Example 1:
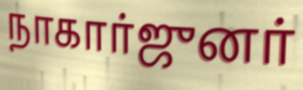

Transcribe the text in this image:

நாகார்ஜுனர்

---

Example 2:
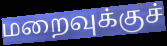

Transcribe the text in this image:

மறைவுக்குச்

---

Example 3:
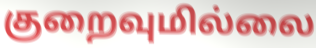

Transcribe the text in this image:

குறைவுமில்லை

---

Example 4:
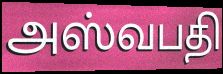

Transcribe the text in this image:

அஸ்வபதி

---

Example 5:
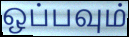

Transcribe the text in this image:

ஒப்பவும்